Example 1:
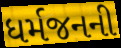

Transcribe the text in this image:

ધર્મજનની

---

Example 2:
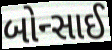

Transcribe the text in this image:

બોન્સાઈ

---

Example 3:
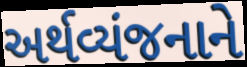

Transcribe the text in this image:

અર્થવ્યંજનાને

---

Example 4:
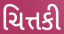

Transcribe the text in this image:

ચિત્તકી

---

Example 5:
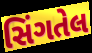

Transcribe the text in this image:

સિંગતેલ